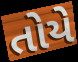
તોયે